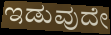
ಇಡುವುದೇ